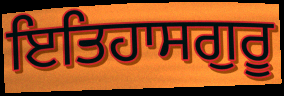
ਇਤਿਹਾਸਗੁਰੂ